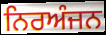
ਨਿਰਅੰਜਨ